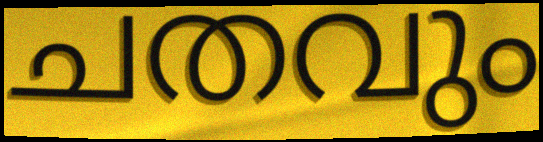
ചതവും